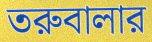
তরুবালার